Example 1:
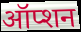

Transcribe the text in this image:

ऑप्शन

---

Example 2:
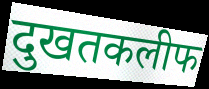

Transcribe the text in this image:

दुखतकलीफ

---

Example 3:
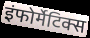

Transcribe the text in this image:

इंफोर्मेटिक्स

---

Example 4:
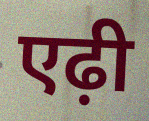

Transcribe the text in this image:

एढ़ी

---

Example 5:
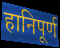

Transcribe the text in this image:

हानिपूर्ण